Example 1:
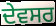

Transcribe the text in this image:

ਦੇਵਸਰ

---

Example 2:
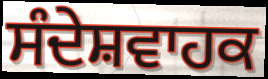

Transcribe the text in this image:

ਸੰਦੇਸ਼ਵਾਹਕ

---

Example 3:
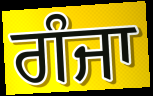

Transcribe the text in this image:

ਗੰਜਾ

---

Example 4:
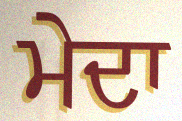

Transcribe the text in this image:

ਮੇਦਾ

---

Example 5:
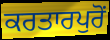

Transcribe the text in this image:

ਕਰਤਾਰਪੁਰੋਂ